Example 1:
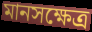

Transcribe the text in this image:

মানসক্ষেত্র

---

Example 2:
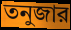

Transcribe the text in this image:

তনুজার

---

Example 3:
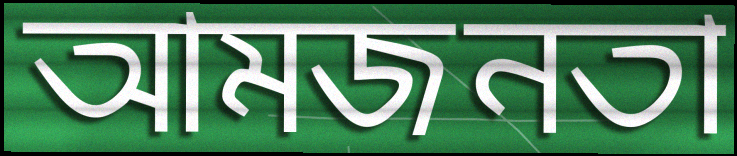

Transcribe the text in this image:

আমজনতা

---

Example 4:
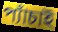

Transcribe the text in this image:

প্যাঁচাই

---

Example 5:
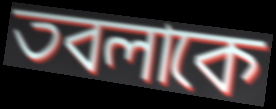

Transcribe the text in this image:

তবলাকে